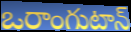
ఒరాంగుటాన్